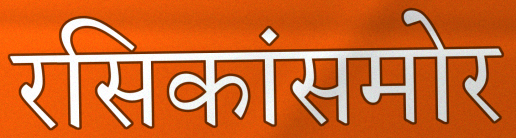
रसिकांसमोर